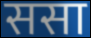
ससा